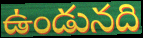
ఉండునది